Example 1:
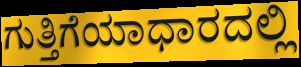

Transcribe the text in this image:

ಗುತ್ತಿಗೆಯಾಧಾರದಲ್ಲಿ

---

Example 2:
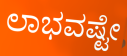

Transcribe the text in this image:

ಲಾಭವಷ್ಟೇ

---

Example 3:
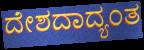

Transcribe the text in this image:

ದೇಶದಾದ್ಯಂತ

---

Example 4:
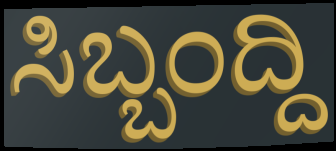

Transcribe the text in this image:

ಸಿಬ್ಬಂದ್ದಿ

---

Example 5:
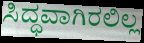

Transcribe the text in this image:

ಸಿದ್ಧವಾಗಿರಲಿಲ್ಲ